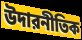
উদারনীতিক